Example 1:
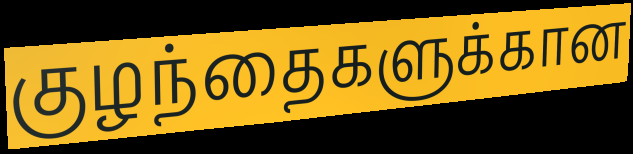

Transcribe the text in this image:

குழந்தைகளுக்கான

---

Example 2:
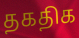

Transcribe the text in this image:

தகதிக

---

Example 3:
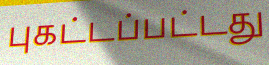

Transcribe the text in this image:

புகட்டப்பட்டது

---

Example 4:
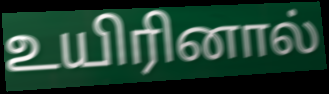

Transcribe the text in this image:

உயிரினால்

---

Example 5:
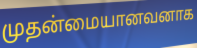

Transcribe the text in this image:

முதன்மையானவனாக